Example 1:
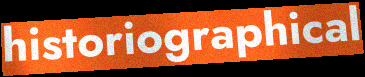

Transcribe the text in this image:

historiographical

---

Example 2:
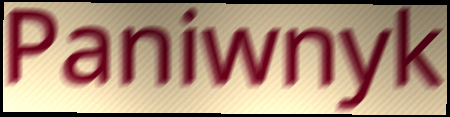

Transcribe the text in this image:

Paniwnyk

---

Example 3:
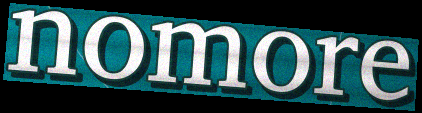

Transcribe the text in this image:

nomore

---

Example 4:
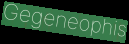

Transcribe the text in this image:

Gegeneophis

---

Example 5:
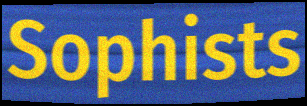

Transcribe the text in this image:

Sophists